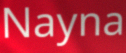
Nayna